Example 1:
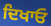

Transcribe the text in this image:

ਦਿਖਾਓ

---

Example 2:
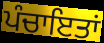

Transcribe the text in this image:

ਪੰਚਾਇਤਾਂ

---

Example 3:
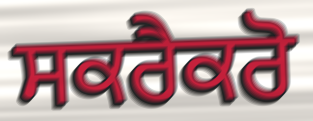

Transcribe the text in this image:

ਸਕਰੈਕਰੋ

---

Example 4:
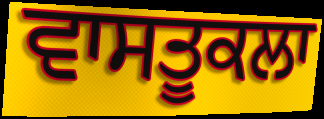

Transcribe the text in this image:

ਵਾਸਤੂਕਲਾ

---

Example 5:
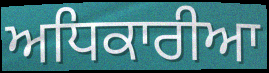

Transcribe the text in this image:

ਅਧਿਕਾਰੀਆ